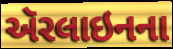
ઍરલાઇનના